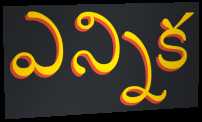
ఎన్నిక